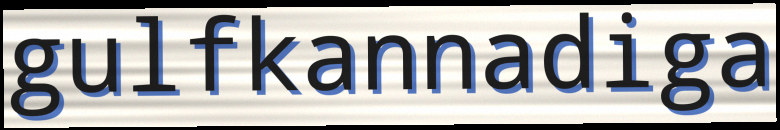
gulfkannadiga